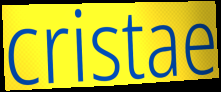
cristae